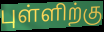
புள்ளிற்கு